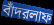
বাঁদরলাফ